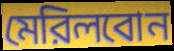
মেরিলবোন